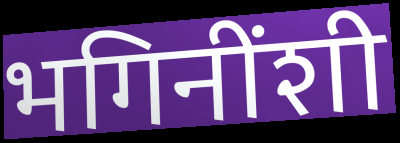
भगिनींशी